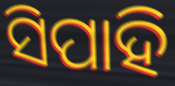
ସିପାହି